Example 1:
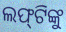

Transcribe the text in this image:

ଲଫ୍‌ଟିଙ୍କୁ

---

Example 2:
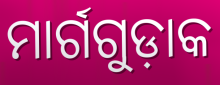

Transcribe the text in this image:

ମାର୍ଗଗୁଡ଼ାକ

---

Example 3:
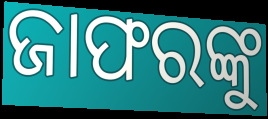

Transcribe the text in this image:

ଜାଫରଙ୍କୁ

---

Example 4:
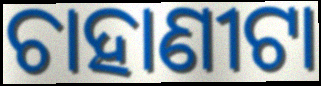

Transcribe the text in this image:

ଚାହାଣୀଟା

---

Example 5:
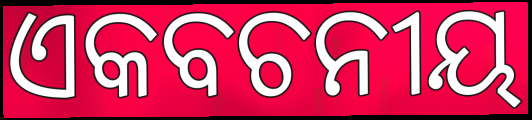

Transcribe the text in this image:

ଏକବଚନୀୟ